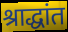
श्राद्धांत